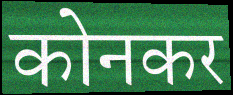
कोनकर